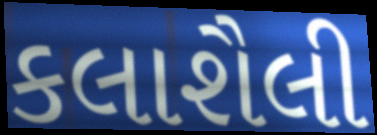
કલાશૈલી